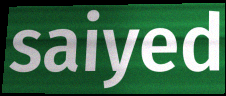
saiyed